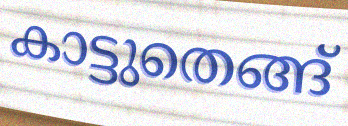
കാട്ടുതെങ്ങ്